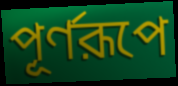
পূর্ণরূপে